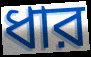
ধার